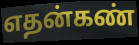
எதன்கண்